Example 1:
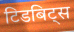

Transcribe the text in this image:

टिडबिट्स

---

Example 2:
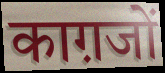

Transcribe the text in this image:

काग़जों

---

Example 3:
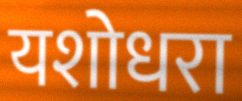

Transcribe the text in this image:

यशोधरा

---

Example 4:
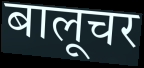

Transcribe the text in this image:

बालूचर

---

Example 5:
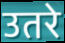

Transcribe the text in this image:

उतरे